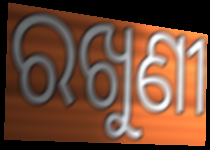
ରଖୁଣୀ